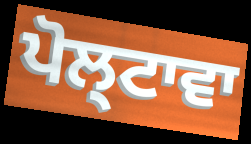
ਪੋਲ੍ਟਾਵਾ